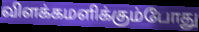
விளக்கமளிக்கும்போது